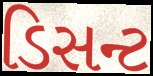
ડિસન્ટ